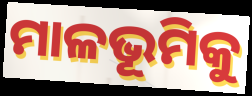
ମାଳଭୂମିକୁ